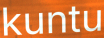
kuntu